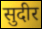
सुदीर